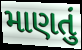
માણતું